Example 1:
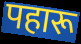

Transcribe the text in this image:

पहारू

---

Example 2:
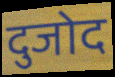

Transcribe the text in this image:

दुजोद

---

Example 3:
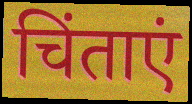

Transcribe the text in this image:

चिंताएं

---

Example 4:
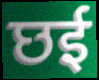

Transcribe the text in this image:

छई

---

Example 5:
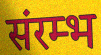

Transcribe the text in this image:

संरम्भ